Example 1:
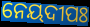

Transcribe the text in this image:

ନେୟଦୀପଃ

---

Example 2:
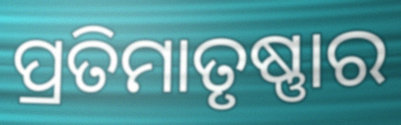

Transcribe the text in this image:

ପ୍ରତିମାତୃଷ୍ଣାର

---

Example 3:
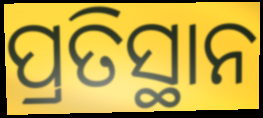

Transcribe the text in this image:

ପ୍ରତିସ୍ଥାନ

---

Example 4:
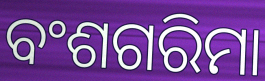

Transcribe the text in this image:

ବଂଶଗରିମା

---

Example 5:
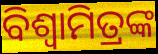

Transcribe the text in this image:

ବିଶ୍ବାମିତ୍ରଙ୍କ